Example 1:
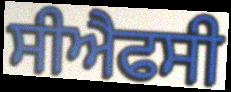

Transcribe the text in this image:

ਸੀਐਫਸੀ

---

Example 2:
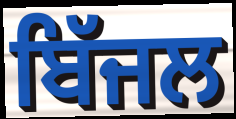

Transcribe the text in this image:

ਬਿੱਜਲ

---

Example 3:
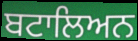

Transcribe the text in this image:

ਬਟਾਲਿਅਨ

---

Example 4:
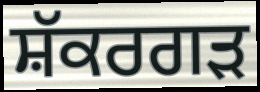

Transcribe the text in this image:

ਸ਼ੱਕਰਗੜ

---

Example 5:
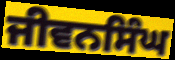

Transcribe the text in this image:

ਜੀਵਨਸਿੰਘ